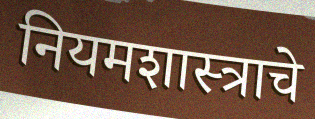
नियमशास्त्राचे